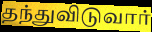
தந்துவிடுவார்